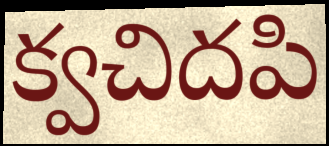
క్వచిదపి